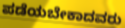
ಪಡೆಯಬೇಕಾದವರು